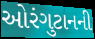
ઓરંગુટાનની